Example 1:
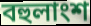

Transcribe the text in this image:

বহুলাংশ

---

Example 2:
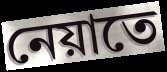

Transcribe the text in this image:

নেয়াতে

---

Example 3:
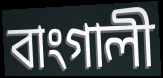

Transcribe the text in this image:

বাংগালী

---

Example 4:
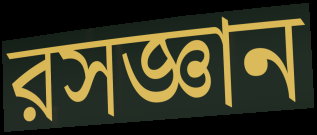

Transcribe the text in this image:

রসজ্ঞান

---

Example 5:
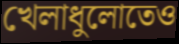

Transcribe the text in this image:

খেলাধুলোতেও